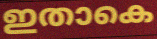
ഇതാകെ